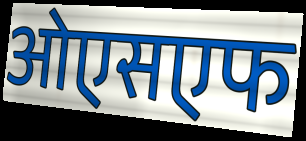
ओएसएफ